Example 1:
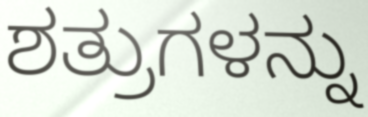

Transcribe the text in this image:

ಶತ್ರುಗಳನ್ನು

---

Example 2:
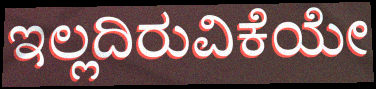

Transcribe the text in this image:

ಇಲ್ಲದಿರುವಿಕೆಯೇ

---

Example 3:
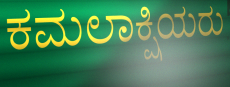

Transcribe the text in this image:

ಕಮಲಾಕ್ಷಿಯರು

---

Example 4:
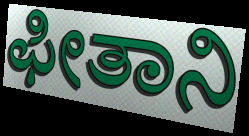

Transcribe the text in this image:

ಫೀತಾನಿ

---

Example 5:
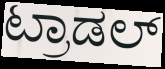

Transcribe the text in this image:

ಟ್ರಾಡಲ್